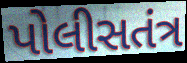
પોલીસતંત્ર